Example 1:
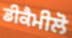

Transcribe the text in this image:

ਡੀਕੈਮੀਲੋ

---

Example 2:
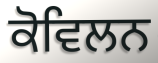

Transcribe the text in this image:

ਕੋਵਿਲਨ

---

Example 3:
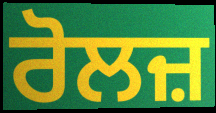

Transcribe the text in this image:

ਰੋਲਜ਼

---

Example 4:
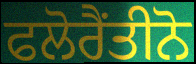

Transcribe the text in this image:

ਫਲੋਰੈਂਤੀਨੋ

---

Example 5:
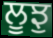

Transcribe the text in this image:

ਲੂਝੁ